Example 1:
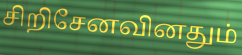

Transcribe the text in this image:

சிறிசேனவினதும்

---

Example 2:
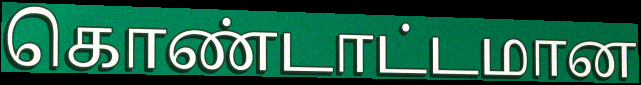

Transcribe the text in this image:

கொண்டாட்டமான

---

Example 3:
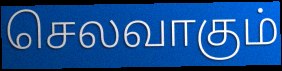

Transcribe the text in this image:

செலவாகும்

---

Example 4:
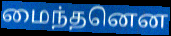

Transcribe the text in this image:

மைந்தனென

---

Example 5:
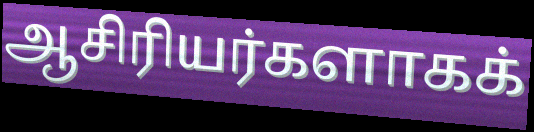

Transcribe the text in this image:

ஆசிரியர்களாகக்